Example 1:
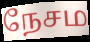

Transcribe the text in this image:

நேசம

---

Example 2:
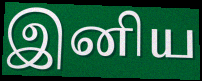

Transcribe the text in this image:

இனிய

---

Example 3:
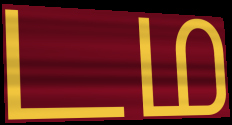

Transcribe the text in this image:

டம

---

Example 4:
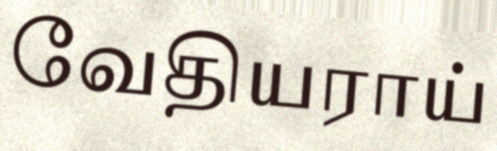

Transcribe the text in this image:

வேதியராய்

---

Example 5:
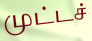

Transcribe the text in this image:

முட்டச்